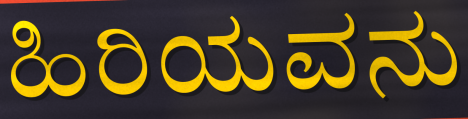
ಹಿರಿಯವನು